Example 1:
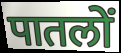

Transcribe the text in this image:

पातलों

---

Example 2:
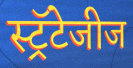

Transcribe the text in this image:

स्ट्रॅटेजीज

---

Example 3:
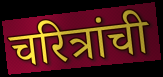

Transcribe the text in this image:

चरित्रांची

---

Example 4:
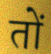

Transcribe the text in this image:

तों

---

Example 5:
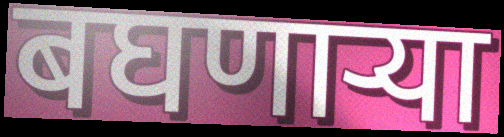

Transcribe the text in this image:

बघणाऱ्या